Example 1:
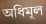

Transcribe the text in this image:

অধিমূল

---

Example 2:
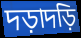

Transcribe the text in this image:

দড়াদড়ি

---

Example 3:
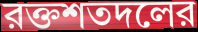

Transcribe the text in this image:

রক্তশতদলের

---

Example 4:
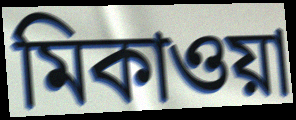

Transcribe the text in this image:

মিকাওয়া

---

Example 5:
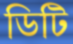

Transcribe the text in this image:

ডিটি